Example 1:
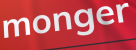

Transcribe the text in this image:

monger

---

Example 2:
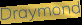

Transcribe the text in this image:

Draymond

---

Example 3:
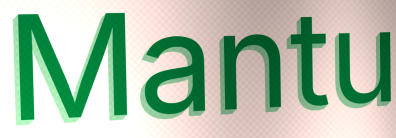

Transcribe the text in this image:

Mantu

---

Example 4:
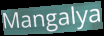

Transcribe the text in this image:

Mangalya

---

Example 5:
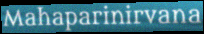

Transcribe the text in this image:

Mahaparinirvana